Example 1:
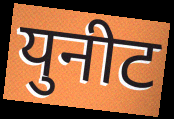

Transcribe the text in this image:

युनीट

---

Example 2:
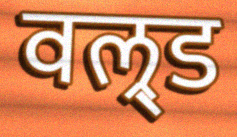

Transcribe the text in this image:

वल्र्ड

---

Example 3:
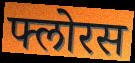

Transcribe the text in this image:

फ्लोरस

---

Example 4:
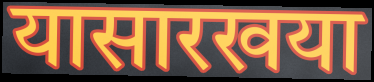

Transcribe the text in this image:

यासारखया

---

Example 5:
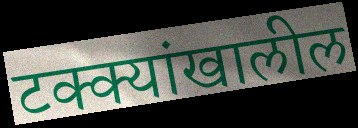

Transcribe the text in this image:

टक्क्यांखालील